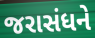
જરાસંધને